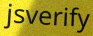
jsverify